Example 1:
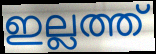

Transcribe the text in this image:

ഇല്ലത്ത്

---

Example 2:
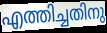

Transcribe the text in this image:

എത്തിച്ചതിനു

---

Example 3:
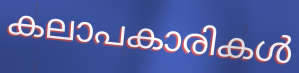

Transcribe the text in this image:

കലാപകാരികൾ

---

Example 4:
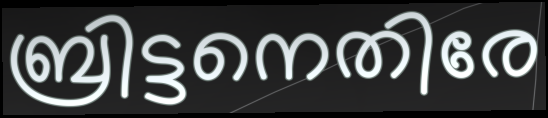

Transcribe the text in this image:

ബ്രിട്ടനെതിരേ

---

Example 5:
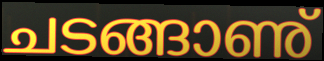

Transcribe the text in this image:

ചടങ്ങാണു്